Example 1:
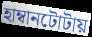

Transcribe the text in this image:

হাম্বানটোটায়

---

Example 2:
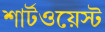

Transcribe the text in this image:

শার্টওয়েস্ট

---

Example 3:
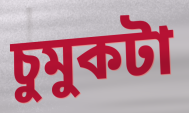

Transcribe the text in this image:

চুমুকটা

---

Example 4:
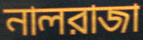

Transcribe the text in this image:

নালরাজা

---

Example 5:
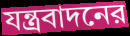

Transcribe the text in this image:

যন্ত্রবাদনের